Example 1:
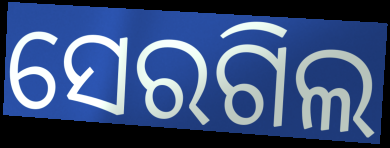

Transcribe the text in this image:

ସେରଗିଲ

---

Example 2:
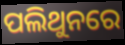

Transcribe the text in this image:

ପଲିଥୁନରେ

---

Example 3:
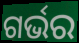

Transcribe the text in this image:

ଗର୍ଭର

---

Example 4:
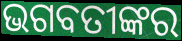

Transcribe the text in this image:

ଭଗବତୀଙ୍କର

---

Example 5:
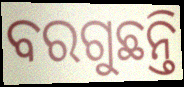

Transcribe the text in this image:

ବରଗୁଛନ୍ତି